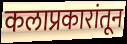
कलाप्रकारांतून